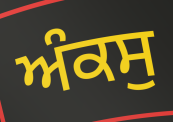
ਅੰਕਸੁ